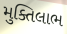
મુક્તિલાભ